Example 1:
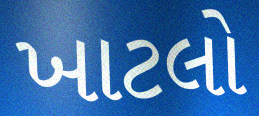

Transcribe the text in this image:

ખાટલો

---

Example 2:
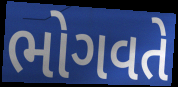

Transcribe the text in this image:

ભોગવતે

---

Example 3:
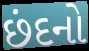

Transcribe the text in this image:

છંદનો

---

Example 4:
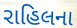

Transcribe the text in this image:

રાહિલના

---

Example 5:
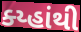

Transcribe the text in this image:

ક્ય્હાંથી